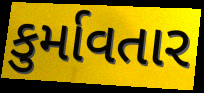
કુર્માવતાર